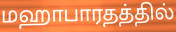
மஹாபாரதத்தில்